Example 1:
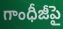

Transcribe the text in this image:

గాంధీజీపై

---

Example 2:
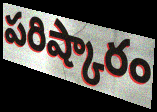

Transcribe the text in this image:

పరిష్కారం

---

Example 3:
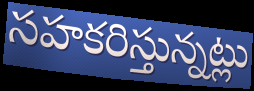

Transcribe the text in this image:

సహకరిస్తున్నట్లు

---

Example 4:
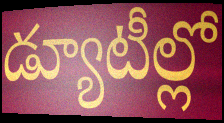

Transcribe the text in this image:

డ్యూటీల్లో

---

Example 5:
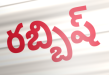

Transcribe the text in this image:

రబ్బిష్